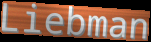
Liebman